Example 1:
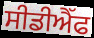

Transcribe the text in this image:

ਸੀਡੀਐੱਫ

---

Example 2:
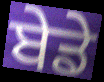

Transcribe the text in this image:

ਬੇਡੇ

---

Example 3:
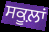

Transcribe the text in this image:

ਸਕੂਲ਼ਾਂ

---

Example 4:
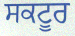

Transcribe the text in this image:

ਸਕਟੂਰ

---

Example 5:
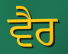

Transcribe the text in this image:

ਵੈਰ